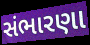
સંભારણા